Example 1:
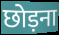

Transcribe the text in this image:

छोड़ना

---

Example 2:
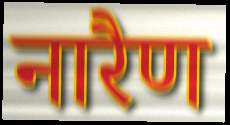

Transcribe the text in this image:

नारैण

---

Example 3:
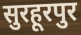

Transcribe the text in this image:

सुरहूरपुर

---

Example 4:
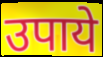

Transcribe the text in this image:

उपाये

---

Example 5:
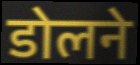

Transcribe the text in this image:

डोलने